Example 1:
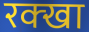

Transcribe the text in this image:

रक्‍खा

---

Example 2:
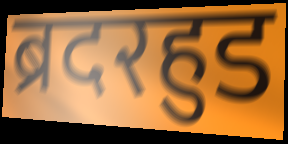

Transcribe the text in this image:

ब्रदरहुड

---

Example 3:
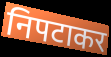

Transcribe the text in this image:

निपटाकर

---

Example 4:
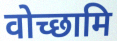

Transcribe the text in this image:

वोच्छामि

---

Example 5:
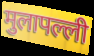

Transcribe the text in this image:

मुलापल्ली